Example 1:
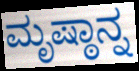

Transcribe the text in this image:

ಮೃಷ್ಠಾನ್ನ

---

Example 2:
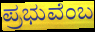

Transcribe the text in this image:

ಪ್ರಭುವೆಂಬ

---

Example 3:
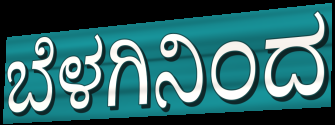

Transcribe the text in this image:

ಬೆಳಗಿನಿಂದ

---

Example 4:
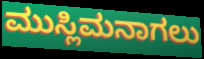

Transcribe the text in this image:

ಮುಸ್ಲಿಮನಾಗಲು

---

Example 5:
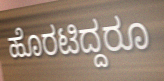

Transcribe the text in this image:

ಹೊರಟಿದ್ದರೂ